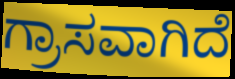
ಗ್ರಾಸವಾಗಿದೆ